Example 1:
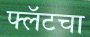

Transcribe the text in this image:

फ्लॅटचा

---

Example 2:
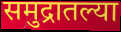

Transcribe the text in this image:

समुद्रातल्या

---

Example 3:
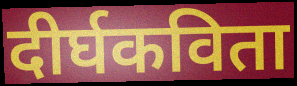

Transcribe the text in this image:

दीर्घकविता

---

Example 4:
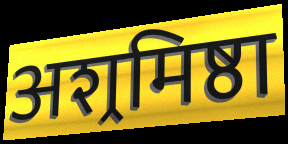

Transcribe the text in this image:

अश्रमिष्ठा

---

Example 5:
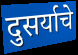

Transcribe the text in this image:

दुसर्याचे